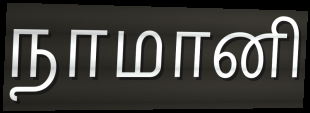
நாமானி